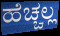
ಹೆಚ್ಚಲ್ಲ